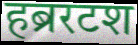
हब्ररटश